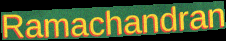
Ramachandran